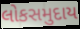
લોકસમુદાય